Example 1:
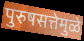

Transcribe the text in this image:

पुरुषसत्तेमुळे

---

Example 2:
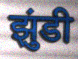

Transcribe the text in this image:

झुंडी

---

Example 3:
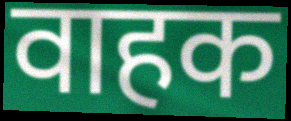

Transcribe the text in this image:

वाहक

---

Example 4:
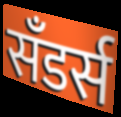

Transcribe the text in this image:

सॅंडर्स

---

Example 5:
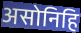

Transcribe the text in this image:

असोनिहि